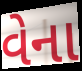
વેના